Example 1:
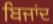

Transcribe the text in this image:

ਬਿਜਾਂਦ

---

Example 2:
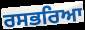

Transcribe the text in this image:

ਰਸਭਰਿਆ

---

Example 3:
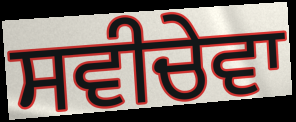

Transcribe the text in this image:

ਸਵੀਚੇਵਾ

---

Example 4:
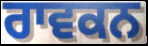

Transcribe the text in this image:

ਰਾਵਕਨ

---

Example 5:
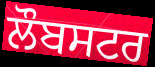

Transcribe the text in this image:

ਲੌਬਸਟਰ